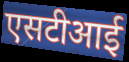
एसटीआई